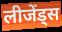
लीजेंड्स